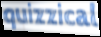
quizzical